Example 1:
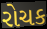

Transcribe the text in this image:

રોચક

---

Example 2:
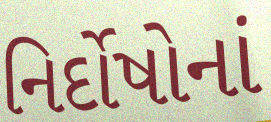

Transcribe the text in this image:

નિર્દોષોનાં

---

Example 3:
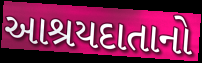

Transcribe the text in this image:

આશ્રયદાતાનો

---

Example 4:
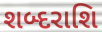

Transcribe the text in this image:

શબ્દરાશિ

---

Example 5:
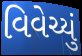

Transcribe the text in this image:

વિવેચ્યું